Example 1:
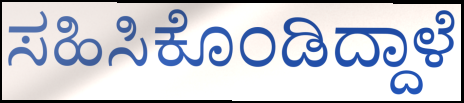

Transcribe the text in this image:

ಸಹಿಸಿಕೊಂಡಿದ್ದಾಳೆ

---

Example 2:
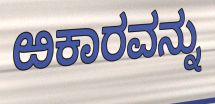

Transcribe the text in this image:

ಱಕಾರವನ್ನು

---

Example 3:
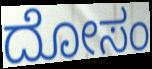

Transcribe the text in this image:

ದೋಸಂ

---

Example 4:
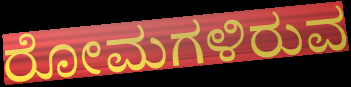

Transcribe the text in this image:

ರೋಮಗಳಿರುವ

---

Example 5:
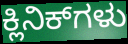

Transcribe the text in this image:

ಕ್ಲಿನಿಕ್‌ಗಳು